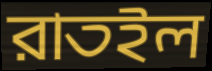
রাতইল